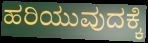
ಹರಿಯುವುದಕ್ಕೆ